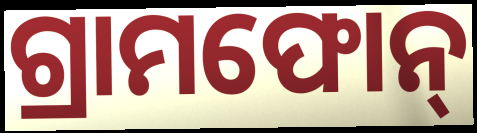
ଗ୍ରାମଫୋନ୍